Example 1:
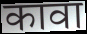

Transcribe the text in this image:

कावा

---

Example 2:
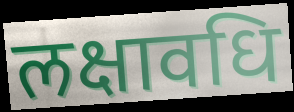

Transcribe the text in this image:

लक्षावधि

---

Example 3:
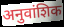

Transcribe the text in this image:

अनुवांशिक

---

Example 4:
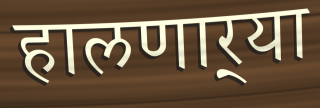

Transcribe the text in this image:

हालणार्या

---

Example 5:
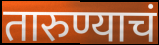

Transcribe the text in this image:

तारुण्याचं